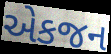
એકજન